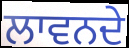
ਲਾਵਨਦੇ